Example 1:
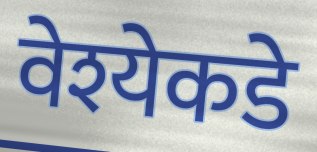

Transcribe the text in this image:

वेश्येकडे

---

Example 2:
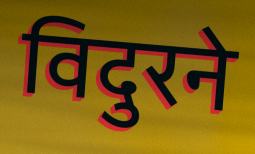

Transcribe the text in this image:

विदुरने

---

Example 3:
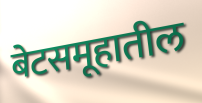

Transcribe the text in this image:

बेटसमूहातील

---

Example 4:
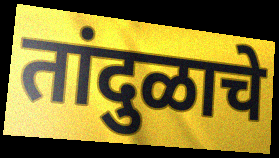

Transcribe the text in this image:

तांदुळाचे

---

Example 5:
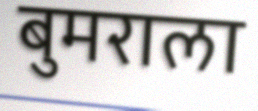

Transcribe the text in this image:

बुमराला